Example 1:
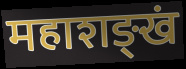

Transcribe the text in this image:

महाशङ्खं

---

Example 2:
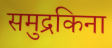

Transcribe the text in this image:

समुद्रकिना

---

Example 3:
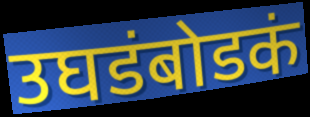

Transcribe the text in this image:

उघडंबोडकं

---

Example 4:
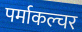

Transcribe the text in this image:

पर्माकल्चर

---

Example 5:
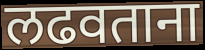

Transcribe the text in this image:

लढवताना